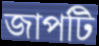
জাপটি